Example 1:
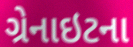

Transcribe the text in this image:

ગ્રેનાઇટના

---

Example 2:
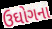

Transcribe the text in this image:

ઉઘોગના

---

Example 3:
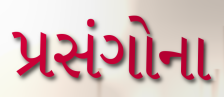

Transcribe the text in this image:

પ્રસંગોના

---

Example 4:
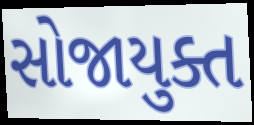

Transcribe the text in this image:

સોજાયુક્ત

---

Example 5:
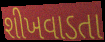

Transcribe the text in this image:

શીખવાડતા